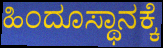
ಹಿಂದೂಸ್ಥಾನಕ್ಕೆ